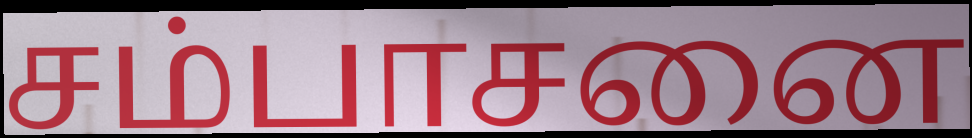
சம்பாசனை